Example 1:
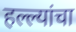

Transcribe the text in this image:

हल्ल्यांचा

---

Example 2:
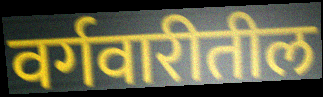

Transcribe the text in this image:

वर्गवारीतील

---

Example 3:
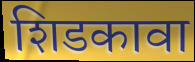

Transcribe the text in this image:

शिडकावा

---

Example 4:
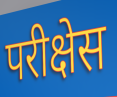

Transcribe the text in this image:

परीक्षेस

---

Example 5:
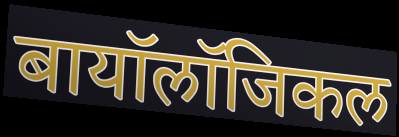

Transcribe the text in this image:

बायॉलॉजिकल